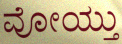
ವೋಯ್ತು